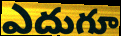
ఎదుగూ